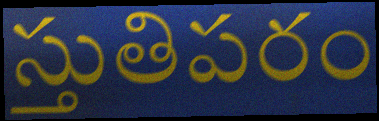
స్తుతిపరం